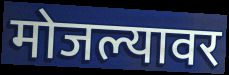
मोजल्यावर